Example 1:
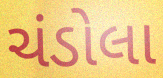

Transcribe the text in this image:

ચંડોલા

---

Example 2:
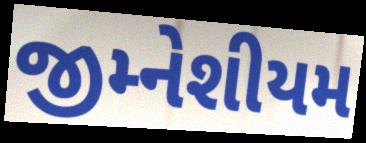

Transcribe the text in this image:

જીમ્નેશીયમ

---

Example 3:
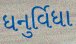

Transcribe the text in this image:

ધનુર્વિધા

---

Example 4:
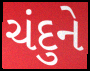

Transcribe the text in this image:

ચંદુને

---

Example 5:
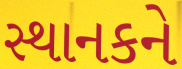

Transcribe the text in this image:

સ્થાનકને